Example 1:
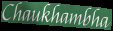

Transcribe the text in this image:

Chaukhambha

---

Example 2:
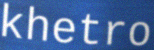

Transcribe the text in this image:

khetro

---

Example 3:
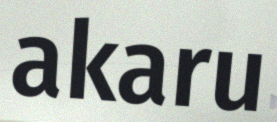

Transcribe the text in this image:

akaru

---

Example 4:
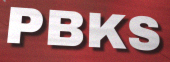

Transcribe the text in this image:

PBKS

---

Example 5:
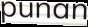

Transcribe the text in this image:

punan